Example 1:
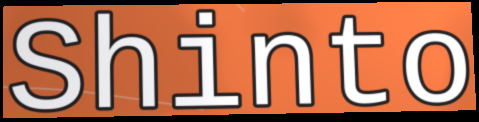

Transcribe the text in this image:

Shinto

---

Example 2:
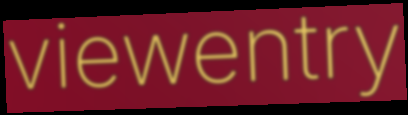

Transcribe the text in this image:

viewentry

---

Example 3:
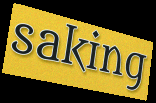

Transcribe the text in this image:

saking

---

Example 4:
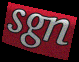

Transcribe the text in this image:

sgn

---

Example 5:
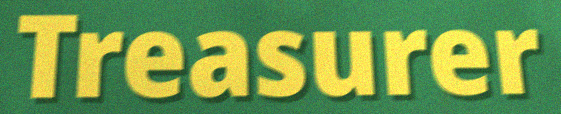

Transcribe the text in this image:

Treasurer